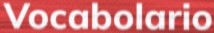
Vocabolario